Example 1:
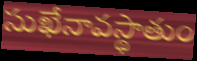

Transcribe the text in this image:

సుఖేనావస్థాతుం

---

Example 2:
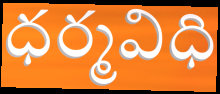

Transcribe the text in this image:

ధర్మవిధి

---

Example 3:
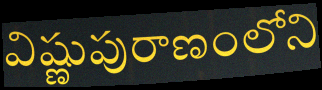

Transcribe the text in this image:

విష్ణుపురాణంలోని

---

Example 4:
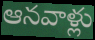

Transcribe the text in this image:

ఆనవాళ్లు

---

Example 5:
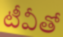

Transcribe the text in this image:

టీవీతో